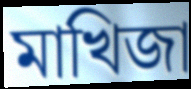
মাখিজা